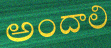
అందాలి